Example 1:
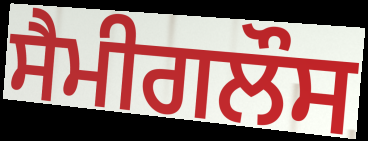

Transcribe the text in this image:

ਸੈਮੀਗਲੌਸ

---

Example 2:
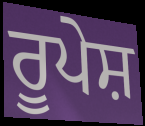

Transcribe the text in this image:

ਰੂਪੇਸ਼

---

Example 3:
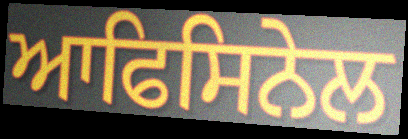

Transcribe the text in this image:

ਆਫਿਸਿਨੇਲ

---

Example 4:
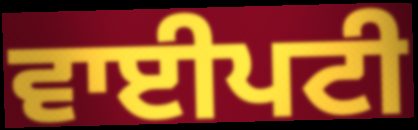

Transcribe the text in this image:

ਵਾਈਪਟੀ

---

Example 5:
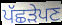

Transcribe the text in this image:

ਪੱਛੜੇਪਣ